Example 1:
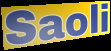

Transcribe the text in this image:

Saoli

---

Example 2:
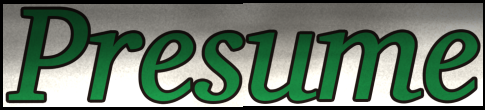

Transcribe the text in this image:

Presume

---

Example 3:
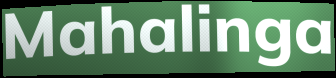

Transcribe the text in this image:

Mahalinga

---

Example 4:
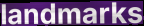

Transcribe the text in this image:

landmarks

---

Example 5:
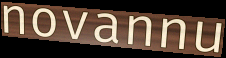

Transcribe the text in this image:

novannu